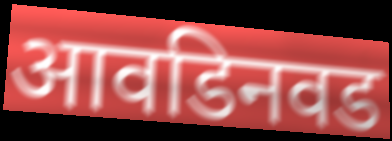
आवडिनवड